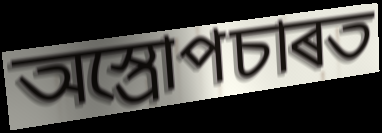
অস্ত্ৰোপচাৰত